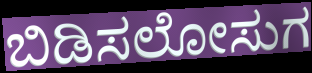
ಬಿಡಿಸಲೋಸುಗ